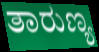
ತಾರುಣ್ಯ